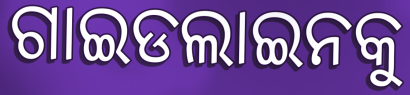
ଗାଇଡଲାଇନକୁ